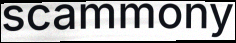
scammony